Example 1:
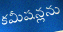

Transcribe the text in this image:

కమీషన్లను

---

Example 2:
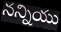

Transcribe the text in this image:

నన్నియు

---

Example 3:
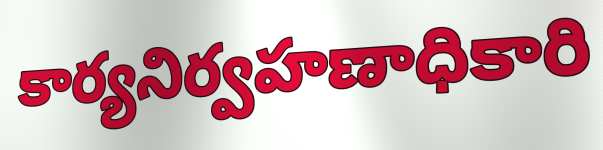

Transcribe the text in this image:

కార్యనిర్వహణాధికారి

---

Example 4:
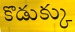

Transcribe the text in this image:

కొడుక్కు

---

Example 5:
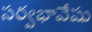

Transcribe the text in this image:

సర్వభావేషు